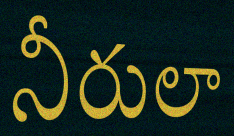
నీరులా